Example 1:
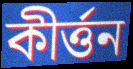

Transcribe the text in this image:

কীৰ্ত্তন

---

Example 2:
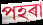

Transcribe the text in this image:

পহৰা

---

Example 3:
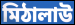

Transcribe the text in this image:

মিঠালাউ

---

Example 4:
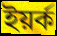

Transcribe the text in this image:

ইয়ৰ্ক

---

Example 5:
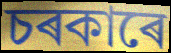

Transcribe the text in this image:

চৰকাৰে